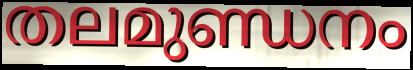
തലമുണ്ഡനം